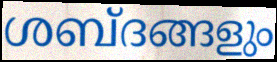
ശബ്ദങ്ങളും